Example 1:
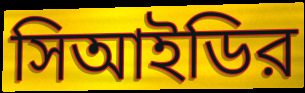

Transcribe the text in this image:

সিআইডির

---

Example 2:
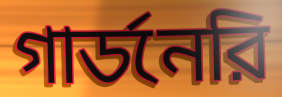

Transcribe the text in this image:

গার্ডনেরি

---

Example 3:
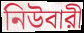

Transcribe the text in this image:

নিউবারী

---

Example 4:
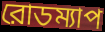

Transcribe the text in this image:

রোডম্যাপ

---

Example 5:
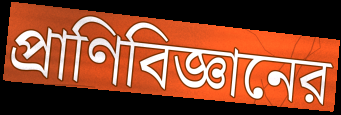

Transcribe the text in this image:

প্রাণিবিজ্ঞানের